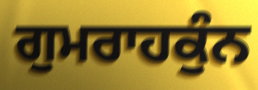
ਗੁਮਰਾਹਕੁੰਨ